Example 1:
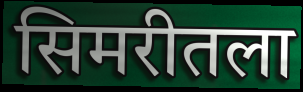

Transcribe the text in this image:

सिमरीतला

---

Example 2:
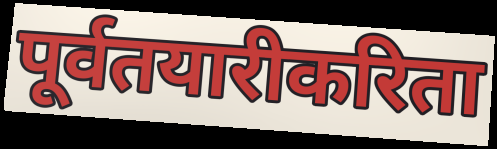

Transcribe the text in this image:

पूर्वतयारीकरिता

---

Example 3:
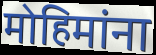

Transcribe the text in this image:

मोहिमांना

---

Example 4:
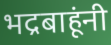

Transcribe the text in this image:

भद्रबाहूंनी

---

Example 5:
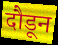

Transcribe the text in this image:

दौडून